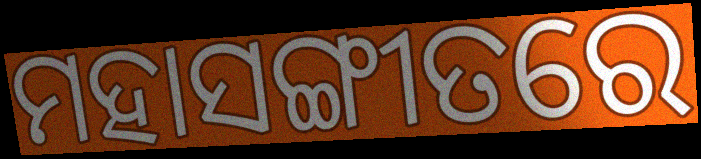
ମହାସଙ୍ଗୀତରେ